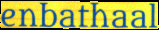
enbathaal